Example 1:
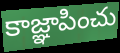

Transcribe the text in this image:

కాజ్ఞాపించు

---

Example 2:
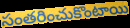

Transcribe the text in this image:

సంతరించుకొంటాయి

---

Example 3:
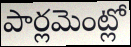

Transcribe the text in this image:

పార్లమెంట్లో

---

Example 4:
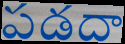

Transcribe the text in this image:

పడదా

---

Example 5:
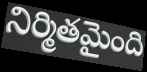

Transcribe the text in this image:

నిర్మితమైంది